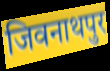
जिवनाथपुर